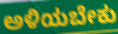
ಅಳಿಯಬೇಕು